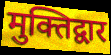
मुक्तिद्वार